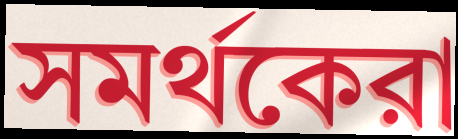
সমর্থকেরা